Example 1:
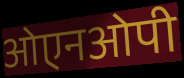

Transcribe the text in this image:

ओएनओपी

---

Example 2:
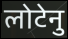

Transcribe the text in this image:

लोटेनु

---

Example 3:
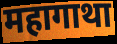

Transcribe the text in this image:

महागाथा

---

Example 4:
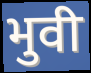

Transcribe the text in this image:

भुवी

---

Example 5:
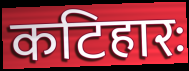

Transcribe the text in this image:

कटिहारः